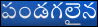
పండగలైన